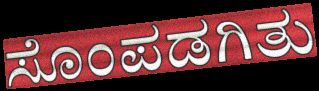
ಸೊಂಪಡಗಿತು